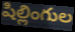
షిల్లింగుల